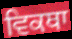
ਵਿਕਥਾ